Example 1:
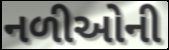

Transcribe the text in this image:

નળીઓની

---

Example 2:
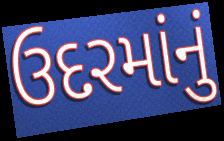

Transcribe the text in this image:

ઉદરમાંનું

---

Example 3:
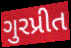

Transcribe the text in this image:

ગુરપ્રીત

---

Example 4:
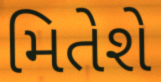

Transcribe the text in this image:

મિતેશે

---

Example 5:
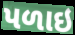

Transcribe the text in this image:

પળાઇ